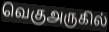
வெகுஅருகில்